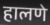
हालणे